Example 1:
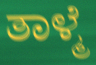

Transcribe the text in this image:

ತಾಳ್ಮೆ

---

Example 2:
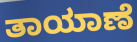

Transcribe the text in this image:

ತಾಯಾಣೆ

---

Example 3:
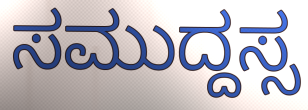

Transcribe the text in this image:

ಸಮುದ್ದಸ್ಸ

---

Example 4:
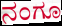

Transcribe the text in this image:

ನಂಗೂ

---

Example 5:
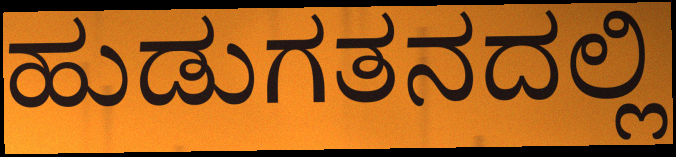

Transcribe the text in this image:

ಹುಡುಗತನದಲ್ಲಿ